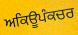
ਅਕਿਊਪੰਕਚਰ